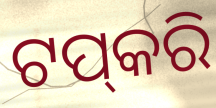
ଟପ୍‌କରି